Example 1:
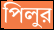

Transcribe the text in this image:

পিলুর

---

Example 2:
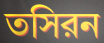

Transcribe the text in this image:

তসিরন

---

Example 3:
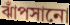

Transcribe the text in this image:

ঝাঁপসানো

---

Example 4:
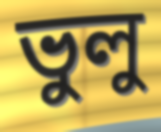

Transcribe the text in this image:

ভুলু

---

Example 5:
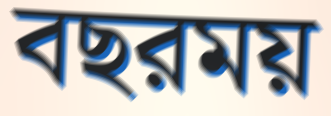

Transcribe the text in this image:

বছরময়